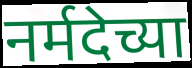
नर्मदेच्या